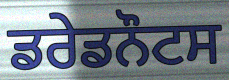
ਡਰੇਡਨੌਟਸ